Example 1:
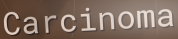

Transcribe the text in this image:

Carcinoma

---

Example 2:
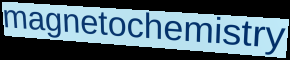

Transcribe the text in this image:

magnetochemistry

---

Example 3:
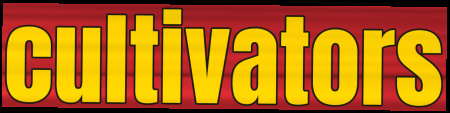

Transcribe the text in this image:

cultivators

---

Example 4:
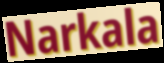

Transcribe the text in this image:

Narkala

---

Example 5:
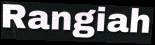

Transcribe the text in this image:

Rangiah